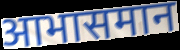
आभासमान